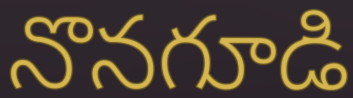
నొనగూడి